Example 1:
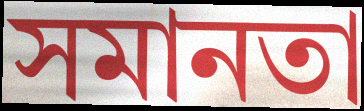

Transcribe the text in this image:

সমানতা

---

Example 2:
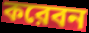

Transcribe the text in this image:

করেবন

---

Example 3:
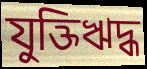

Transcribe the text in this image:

যুক্তিঋদ্ধ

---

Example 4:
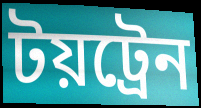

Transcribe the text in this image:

টয়ট্রেন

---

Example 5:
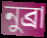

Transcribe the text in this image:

নুব্রা